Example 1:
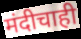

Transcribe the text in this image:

मंदीचाही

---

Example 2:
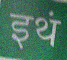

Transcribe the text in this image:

इथं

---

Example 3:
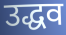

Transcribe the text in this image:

उद्धव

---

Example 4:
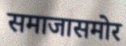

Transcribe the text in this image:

समाजासमोर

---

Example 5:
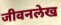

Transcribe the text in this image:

जीवनलेख